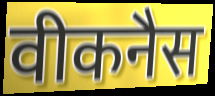
वीकनैस